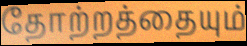
தோற்றத்தையும்